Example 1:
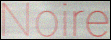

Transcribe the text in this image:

Noire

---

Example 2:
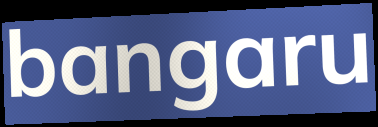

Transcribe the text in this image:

bangaru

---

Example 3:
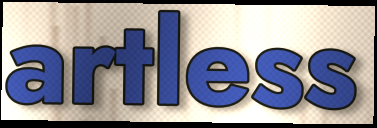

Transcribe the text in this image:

artless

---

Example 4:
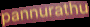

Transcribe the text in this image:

pannurathu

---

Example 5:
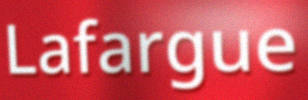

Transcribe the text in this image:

Lafargue